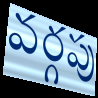
వర్గపు